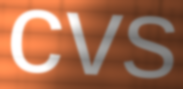
cvs